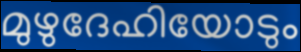
മുഴുദേഹിയോടും